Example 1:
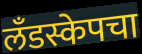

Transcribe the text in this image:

लँडस्केपचा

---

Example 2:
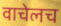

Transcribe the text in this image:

वाचेलच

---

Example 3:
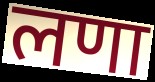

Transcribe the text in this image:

लणा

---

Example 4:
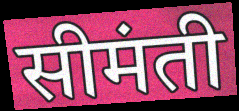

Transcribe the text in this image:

सीमंती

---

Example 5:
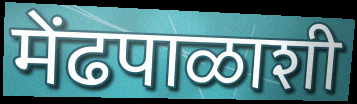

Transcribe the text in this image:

मेंढपाळाशी